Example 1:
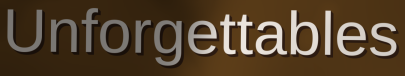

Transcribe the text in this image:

Unforgettables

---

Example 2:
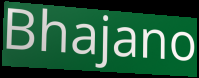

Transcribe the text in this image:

Bhajano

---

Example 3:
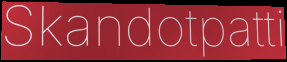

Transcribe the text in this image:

Skandotpatti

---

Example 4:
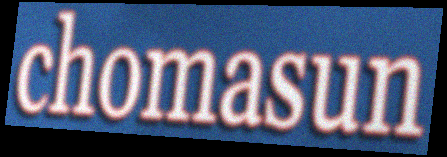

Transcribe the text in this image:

chomasun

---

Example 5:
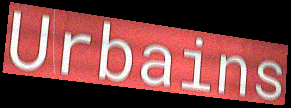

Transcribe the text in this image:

Urbains